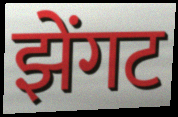
झेंगट